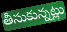
తీసుకున్నట్లు